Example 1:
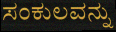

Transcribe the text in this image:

ಸಂಕುಲವನ್ನು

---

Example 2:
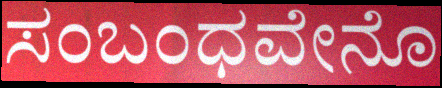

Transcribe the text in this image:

ಸಂಬಂಧವೇನೊ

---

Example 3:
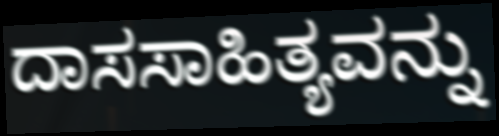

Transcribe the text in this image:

ದಾಸಸಾಹಿತ್ಯವನ್ನು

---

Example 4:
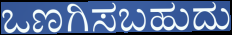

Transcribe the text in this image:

ಒಣಗಿಸಬಹುದು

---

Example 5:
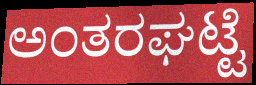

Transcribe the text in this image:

ಅಂತರಘಟ್ಟೆ